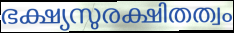
ഭക്ഷ്യസുരക്ഷിതത്വം